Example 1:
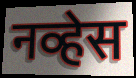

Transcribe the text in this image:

नव्हेस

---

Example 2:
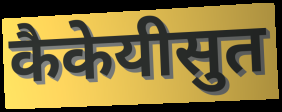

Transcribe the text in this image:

कैकेयीसुत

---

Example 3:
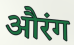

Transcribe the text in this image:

औरंग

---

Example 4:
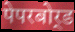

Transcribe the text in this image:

पेपरबोर्ड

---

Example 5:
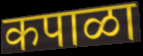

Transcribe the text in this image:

कपाळा